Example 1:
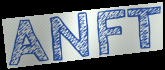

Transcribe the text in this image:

ANFT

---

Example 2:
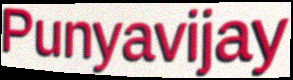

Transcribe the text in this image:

Punyavijay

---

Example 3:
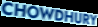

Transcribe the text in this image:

CHOWDHURY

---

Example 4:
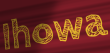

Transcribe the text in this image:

Ihowa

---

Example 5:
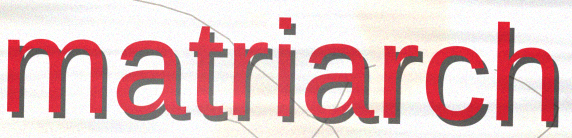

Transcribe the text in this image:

matriarch